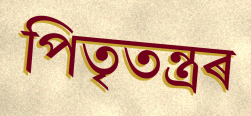
পিতৃতন্ত্ৰৰ